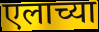
एलाच्या